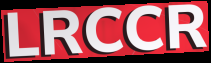
LRCCR